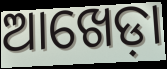
ଆଖେଡ଼ା